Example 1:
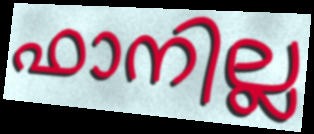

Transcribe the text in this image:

ഫാനില്ല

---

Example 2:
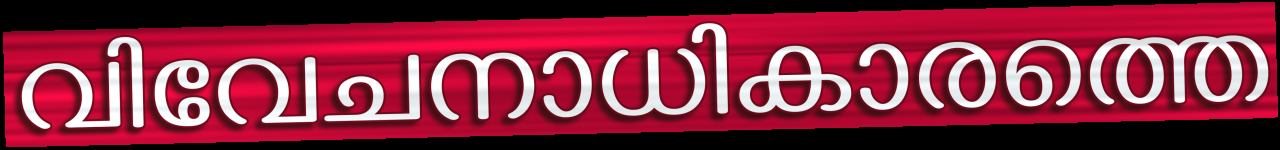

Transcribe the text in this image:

വിവേചനാധികാരത്തെ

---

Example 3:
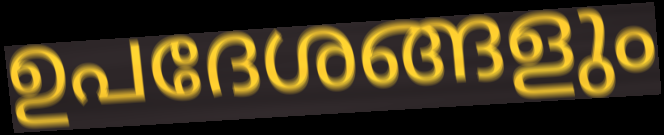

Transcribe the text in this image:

ഉപദേശങ്ങളും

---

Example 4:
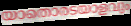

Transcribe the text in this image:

യാതൊരടയാളവും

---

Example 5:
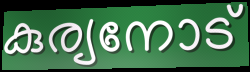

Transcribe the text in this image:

കുര്യനോട്